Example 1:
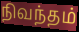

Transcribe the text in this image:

நிவந்தம்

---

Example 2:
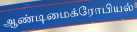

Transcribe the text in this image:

ஆண்டிமைக்ரோபியல்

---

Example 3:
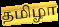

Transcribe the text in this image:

தமிழா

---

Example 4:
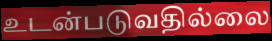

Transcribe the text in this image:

உடன்படுவதில்லை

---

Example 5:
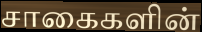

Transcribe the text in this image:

சாகைகளின்